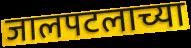
जालपटलाच्या